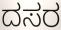
ದಸರ